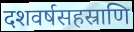
दशवर्षसहस्राणि